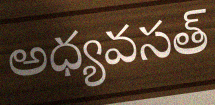
అధ్యవసత్